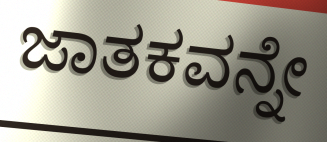
ಜಾತಕವನ್ನೇ